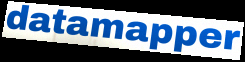
datamapper